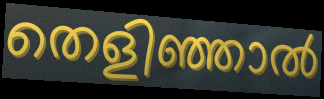
തെളിഞ്ഞാൽ